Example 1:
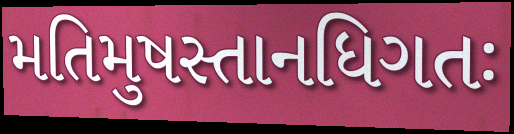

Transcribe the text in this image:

મતિમુષસ્તાનધિગતઃ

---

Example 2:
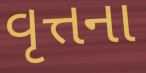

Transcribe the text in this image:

વૃત્તના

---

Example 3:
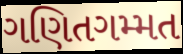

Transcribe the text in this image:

ગણિતગમ્મત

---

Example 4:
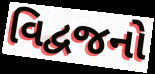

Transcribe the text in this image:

વિદ્વજનો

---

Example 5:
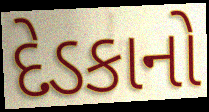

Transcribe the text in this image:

દેડકાનો